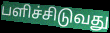
பளிச்சிடுவது